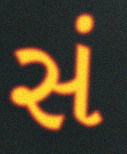
સં